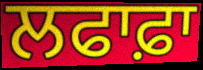
ਲਫਾਫ਼ਾ